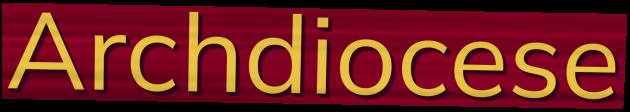
Archdiocese